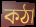
কঠা